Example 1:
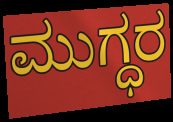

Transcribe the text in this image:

ಮುಗ್ಧರ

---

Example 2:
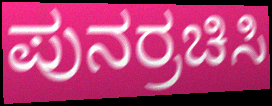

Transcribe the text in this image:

ಪುನರ್ರಚಿಸಿ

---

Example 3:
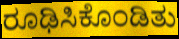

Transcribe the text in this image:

ರೂಢಿಸಿಕೊಂಡಿತು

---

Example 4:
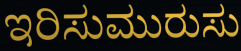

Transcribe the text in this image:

ಇರಿಸುಮುರುಸು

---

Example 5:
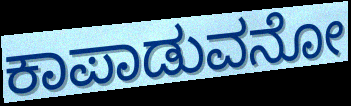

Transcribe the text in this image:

ಕಾಪಾಡುವನೋ